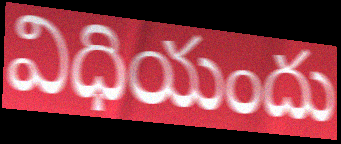
విధియందు